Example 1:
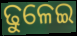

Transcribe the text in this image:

ଢୁଳେଇ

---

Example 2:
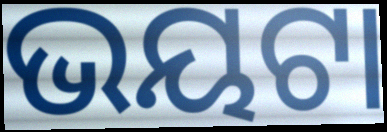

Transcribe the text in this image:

ଭୟଟା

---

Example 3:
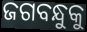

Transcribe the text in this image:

ଜଗବନ୍ଧୁକୁ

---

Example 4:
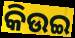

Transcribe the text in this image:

କିଉଇ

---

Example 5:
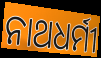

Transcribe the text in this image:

ନାଥଧର୍ମୀ